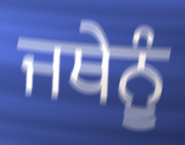
ਜਥੇਨੂੰ